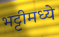
भट्टीमध्ये